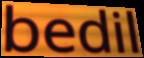
bedil